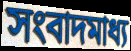
সংবাদমাধ্য